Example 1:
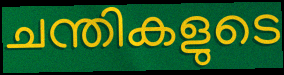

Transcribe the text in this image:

ചന്തികളുടെ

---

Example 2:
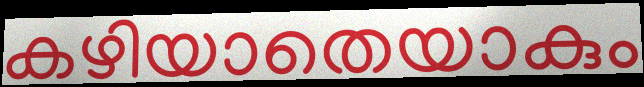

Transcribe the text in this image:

കഴിയാതെയാകും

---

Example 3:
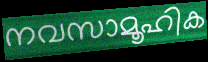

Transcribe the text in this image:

നവസാമൂഹിക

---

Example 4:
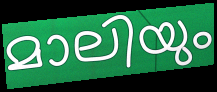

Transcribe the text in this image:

മാലിയും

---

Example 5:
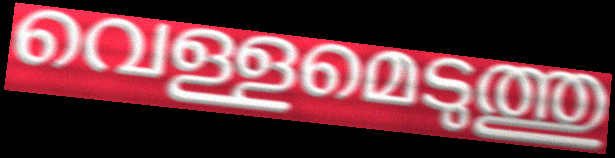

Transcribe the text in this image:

വെള്ളമെടുത്തു